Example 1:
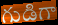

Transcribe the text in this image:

గుడిగా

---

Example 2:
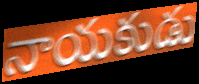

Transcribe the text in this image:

నాయకుడు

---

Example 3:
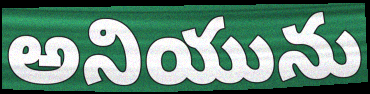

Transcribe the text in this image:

అనియును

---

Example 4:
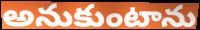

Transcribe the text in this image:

అనుకుంటాను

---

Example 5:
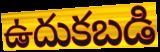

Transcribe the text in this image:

ఉదుకబడి